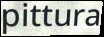
pittura